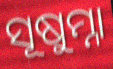
ସୂଷୁମ୍ନା